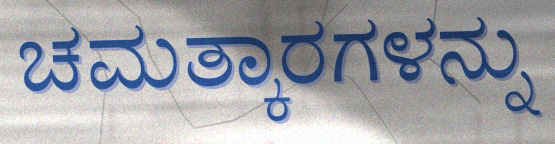
ಚಮತ್ಕಾರಗಳನ್ನು